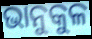
ଭାନୁକୁଳ